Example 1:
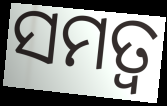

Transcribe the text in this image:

ସମତ୍ଵ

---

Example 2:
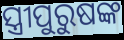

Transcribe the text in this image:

ସ୍ତ୍ରୀପୁରୁଷଙ୍କ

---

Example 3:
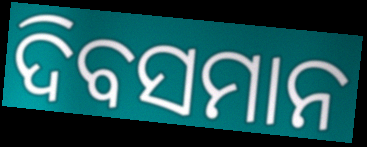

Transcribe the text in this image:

ଦିବସମାନ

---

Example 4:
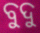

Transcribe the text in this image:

ବୁଦୁ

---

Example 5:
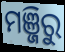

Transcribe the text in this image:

ମଞ୍ଜିରୁ